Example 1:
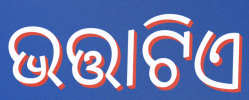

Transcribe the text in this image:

ଭତ୍ତାଟିଏ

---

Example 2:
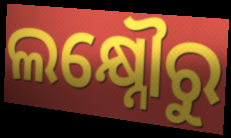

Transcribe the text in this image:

ଲକ୍ଷ୍ନୌରୁ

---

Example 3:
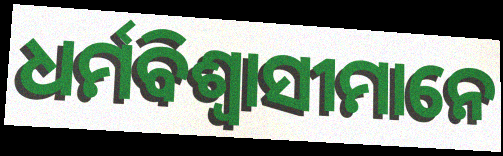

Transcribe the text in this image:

ଧର୍ମବିଶ୍ଵାସୀମାନେ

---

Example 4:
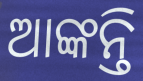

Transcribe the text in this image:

ଆଙ୍କନ୍ତି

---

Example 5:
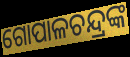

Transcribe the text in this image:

ଗୋପାଳଚନ୍ଦ୍ରଙ୍କ